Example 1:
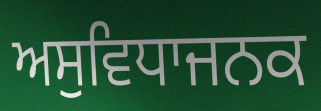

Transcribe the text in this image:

ਅਸੁਵਿਧਾਜਨਕ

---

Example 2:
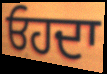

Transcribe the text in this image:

ਓਹਦਾ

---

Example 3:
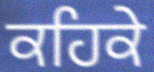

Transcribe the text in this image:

ਕਹਿਕੇ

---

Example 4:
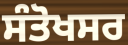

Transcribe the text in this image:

ਸੰਤੋਖਸਰ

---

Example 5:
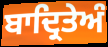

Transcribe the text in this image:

ਬਾਦ੍ਰਿਤੇਅੰ